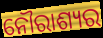
ନୌରାଶ୍ୟର